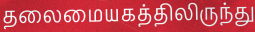
தலைமையகத்திலிருந்து